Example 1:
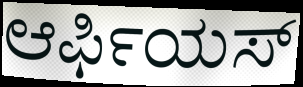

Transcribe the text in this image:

ಆರ್ಫಿಯಸ್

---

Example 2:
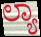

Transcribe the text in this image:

ಲ್ಯಾ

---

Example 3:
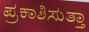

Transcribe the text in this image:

ಪ್ರಕಾಶಿಸುತ್ತಾ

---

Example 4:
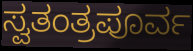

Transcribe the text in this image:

ಸ್ವತಂತ್ರಪೂರ್ವ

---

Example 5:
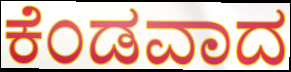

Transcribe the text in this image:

ಕೆಂಡವಾದ